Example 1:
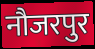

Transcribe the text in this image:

नौजरपुर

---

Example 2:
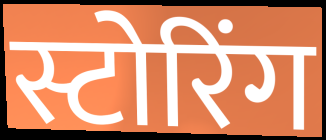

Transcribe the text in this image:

स्टोरिंग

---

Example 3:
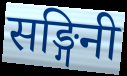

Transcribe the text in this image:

सङ्गिनी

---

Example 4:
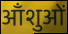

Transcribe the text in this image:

आँशुओं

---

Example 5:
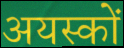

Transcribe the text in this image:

अयस्कों